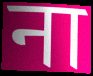
ना